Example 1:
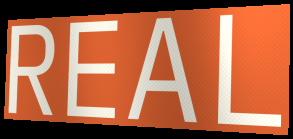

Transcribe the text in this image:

REAL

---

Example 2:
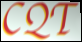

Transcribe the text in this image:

CQT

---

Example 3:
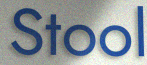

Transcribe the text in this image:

Stool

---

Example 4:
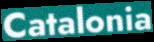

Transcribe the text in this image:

Catalonia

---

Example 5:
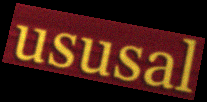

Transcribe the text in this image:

ususal